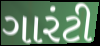
ગારંટી